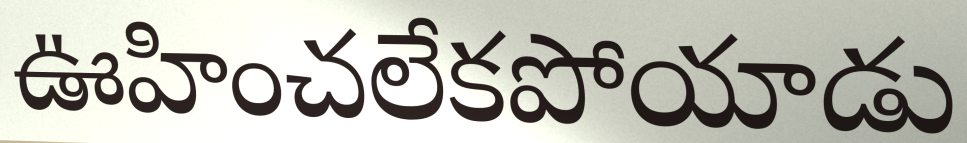
ఊహించలేకపోయాడు